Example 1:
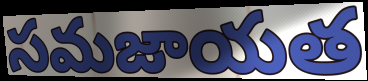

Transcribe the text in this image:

సమజాయత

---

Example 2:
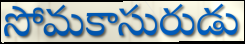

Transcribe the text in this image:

సోమకాసురుడు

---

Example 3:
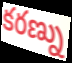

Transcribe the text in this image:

కరణ్ను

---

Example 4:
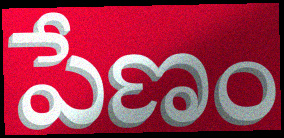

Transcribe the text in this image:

పేణం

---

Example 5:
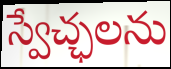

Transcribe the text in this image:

స్వేచ్ఛలను